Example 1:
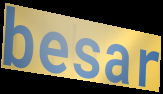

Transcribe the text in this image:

besar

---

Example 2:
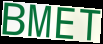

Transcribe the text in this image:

BMET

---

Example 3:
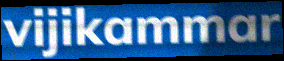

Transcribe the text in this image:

vijikammar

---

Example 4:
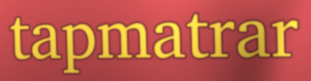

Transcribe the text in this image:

tapmatrar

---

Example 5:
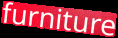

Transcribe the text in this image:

furniture